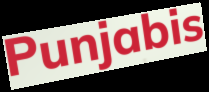
Punjabis